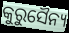
କୁରୁସୈନ୍ୟ